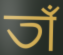
তাঁ